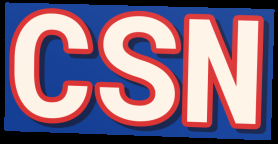
CSN